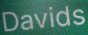
Davids